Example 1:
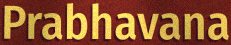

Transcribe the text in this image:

Prabhavana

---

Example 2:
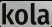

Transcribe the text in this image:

kola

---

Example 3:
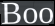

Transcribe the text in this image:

Boo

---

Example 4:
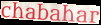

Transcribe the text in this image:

chabahar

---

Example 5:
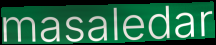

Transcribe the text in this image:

masaledar